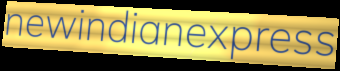
newindianexpress